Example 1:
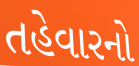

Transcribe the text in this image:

તહેવારનો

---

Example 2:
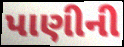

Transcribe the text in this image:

પાણીની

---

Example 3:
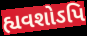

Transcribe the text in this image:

હ્યવશોઽપિ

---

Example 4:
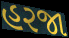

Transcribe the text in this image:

હરજા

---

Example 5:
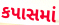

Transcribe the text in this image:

કપાસમાં